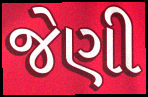
જેણી